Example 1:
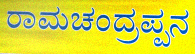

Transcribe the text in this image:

ರಾಮಚಂದ್ರಪ್ಪನ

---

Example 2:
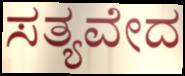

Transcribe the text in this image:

ಸತ್ಯವೇದ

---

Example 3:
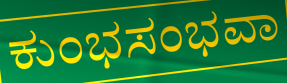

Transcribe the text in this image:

ಕುಂಭಸಂಭವಾ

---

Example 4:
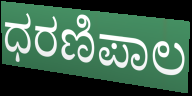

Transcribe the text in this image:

ಧರಣಿಪಾಲ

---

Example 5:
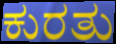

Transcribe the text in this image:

ಕುರತು